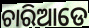
ଚାରିଆଡେ